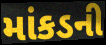
માંકડની